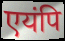
एयंपि